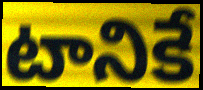
టానికే